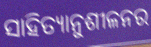
ସାହିତ୍ୟାନୁଶୀଳନର